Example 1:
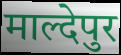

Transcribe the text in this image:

माल्देपुर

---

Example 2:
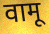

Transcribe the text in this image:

वामू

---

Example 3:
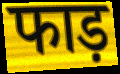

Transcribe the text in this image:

फाड़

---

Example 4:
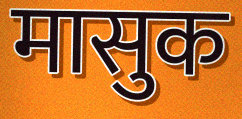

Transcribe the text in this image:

मासुक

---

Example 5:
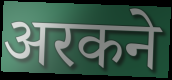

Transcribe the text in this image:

अरकने